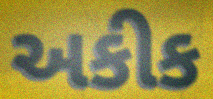
અકીક